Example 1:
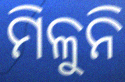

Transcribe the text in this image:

ମିଳୁନି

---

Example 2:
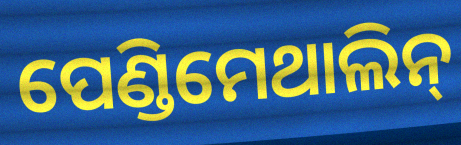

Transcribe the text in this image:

ପେଣ୍ଡିମେଥାଲିନ୍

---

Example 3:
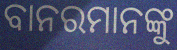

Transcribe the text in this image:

ବାନରମାନଙ୍କୁ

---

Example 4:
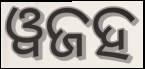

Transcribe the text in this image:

ୱଜହ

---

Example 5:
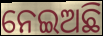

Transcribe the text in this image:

ନେଇଅଛି